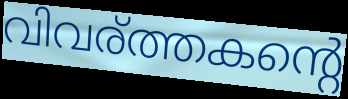
വിവര്ത്തകന്റെ